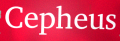
Cepheus